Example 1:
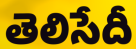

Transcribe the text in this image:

తెలిసేదీ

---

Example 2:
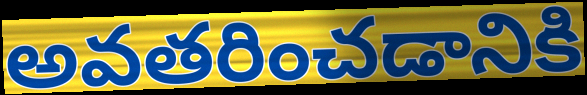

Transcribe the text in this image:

అవతరించడానికి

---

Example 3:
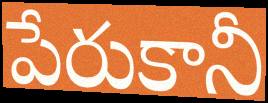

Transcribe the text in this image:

పేరుకానీ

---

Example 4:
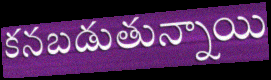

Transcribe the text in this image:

కనబడుతున్నాయి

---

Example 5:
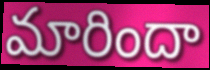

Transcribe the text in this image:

మారిందా